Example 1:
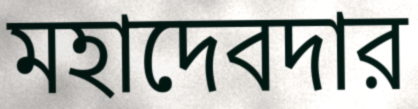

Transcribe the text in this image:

মহাদেবদার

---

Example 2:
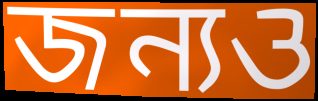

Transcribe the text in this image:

জন্যও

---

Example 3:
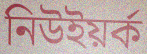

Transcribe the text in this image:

নিউইয়র্ক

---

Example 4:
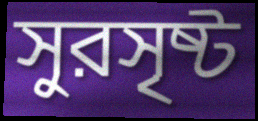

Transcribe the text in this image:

সুরসৃষ্ট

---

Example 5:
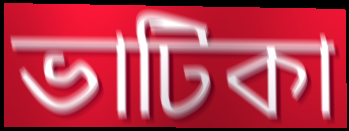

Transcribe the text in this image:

ভাটিকা